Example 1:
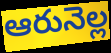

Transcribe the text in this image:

ఆరునెల్ల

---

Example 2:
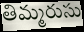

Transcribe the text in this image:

తిమ్మరుసు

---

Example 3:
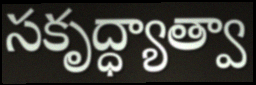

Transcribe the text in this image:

సకృద్ధ్యాత్వా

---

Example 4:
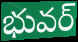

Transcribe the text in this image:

భువర్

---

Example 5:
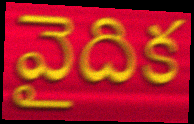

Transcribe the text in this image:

వైదిక